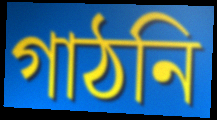
গাঠনি